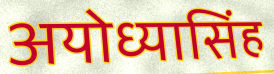
अयोध्यासिंह